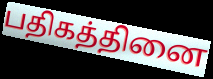
பதிகத்தினை